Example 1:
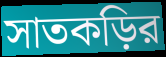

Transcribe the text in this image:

সাতকড়ির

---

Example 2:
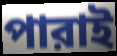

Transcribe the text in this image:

পারাই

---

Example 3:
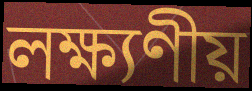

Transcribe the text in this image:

লক্ষ্যণীয়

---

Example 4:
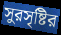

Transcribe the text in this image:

সুরসৃষ্টির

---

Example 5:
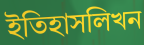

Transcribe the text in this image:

ইতিহাসলিখন